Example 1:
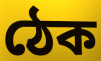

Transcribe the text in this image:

ঠেক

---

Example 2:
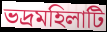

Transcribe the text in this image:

ভদ্রমহিলাটি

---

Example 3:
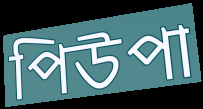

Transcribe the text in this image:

পিউপা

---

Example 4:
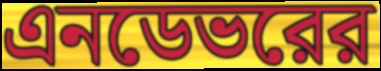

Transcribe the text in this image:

এনডেভরের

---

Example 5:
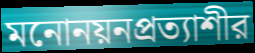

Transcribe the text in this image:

মনোনয়নপ্রত্যাশীর